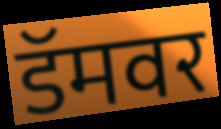
डॅमवर